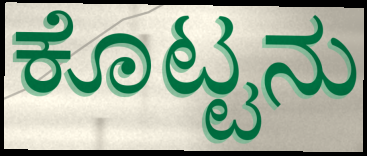
ಕೊಟ್ಟನು